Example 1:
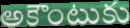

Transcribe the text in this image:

అకౌంటుకు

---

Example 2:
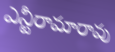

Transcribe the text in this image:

ఎన్టీరామారావు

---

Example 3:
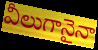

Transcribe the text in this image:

వీలుగానైనా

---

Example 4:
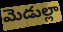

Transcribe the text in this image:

మెడుల్లా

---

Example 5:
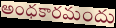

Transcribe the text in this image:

అంధకారమందు